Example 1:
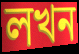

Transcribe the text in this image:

লখন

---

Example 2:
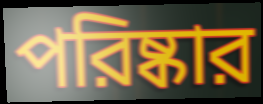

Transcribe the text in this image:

পরিষ্কার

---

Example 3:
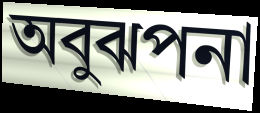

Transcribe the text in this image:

অবুঝপনা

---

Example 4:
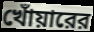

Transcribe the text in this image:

খোঁয়ারের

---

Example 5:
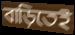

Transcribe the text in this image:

বাড়িতেই